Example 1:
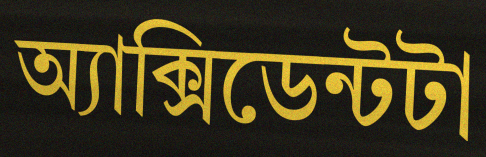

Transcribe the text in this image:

অ্যাক্সিডেন্টটা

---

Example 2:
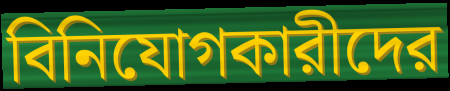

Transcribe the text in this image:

বিনিযোগকারীদের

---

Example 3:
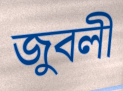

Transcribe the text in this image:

জুবলী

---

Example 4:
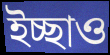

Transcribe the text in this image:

ইচ্ছাও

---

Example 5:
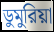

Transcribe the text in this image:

ডুমুরিয়া